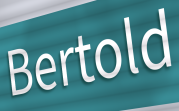
Bertold